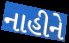
નાહીને